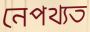
নেপথ্যত